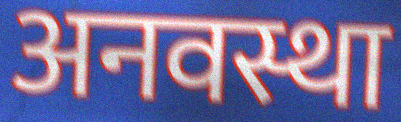
अनवस्था